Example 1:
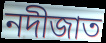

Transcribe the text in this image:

নদীজাত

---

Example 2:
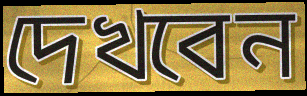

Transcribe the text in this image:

দেখবেন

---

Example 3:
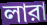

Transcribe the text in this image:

লারা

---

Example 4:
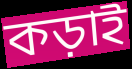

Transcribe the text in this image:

কড়াই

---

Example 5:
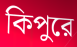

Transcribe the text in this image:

কিপুরে